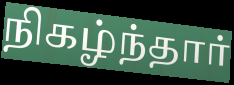
நிகழ்ந்தார்